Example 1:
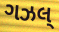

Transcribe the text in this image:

ગઝલ્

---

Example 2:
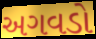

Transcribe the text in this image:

અગવડો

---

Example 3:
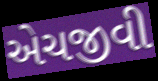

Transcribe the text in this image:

એચજીવી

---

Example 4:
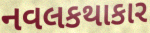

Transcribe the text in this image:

નવલકથાકાર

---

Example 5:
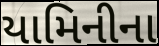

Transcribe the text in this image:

યામિનીના